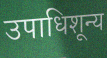
उपाधिशून्य